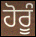
ਹੋਰੂੰ